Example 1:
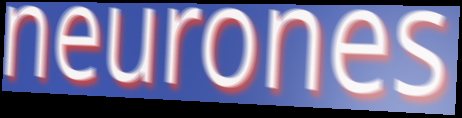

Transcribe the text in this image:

neurones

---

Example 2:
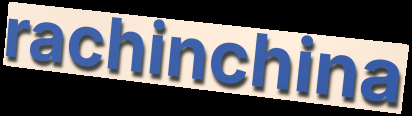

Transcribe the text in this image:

rachinchina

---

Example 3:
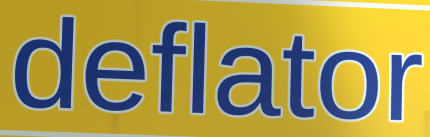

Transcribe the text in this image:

deflator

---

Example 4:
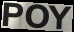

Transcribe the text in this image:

POY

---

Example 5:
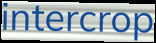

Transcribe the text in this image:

intercrop